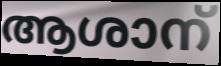
ആശാന്